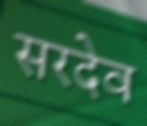
सरदेव